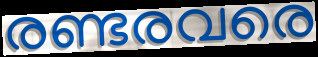
രണ്ടരവരെ